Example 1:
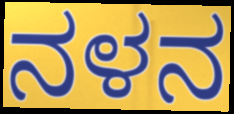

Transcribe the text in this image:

ನಳನ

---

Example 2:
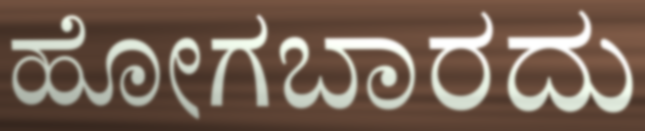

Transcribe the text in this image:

ಹೋಗಬಾರದು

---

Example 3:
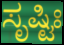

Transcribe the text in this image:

ಸೃಷ್ಟಿಃ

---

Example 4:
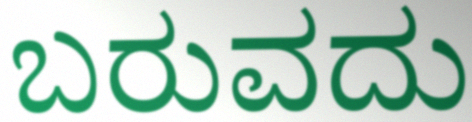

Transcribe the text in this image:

ಬರುವದು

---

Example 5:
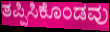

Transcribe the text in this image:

ತಪ್ಪಿಸಿಕೊಂಡವು